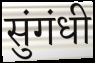
सुंगंधी